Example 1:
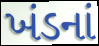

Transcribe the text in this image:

ખંડનાં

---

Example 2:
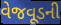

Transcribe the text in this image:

વેજવૂડની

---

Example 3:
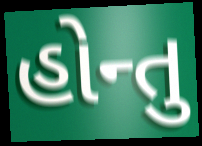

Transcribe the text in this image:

હોન્તુ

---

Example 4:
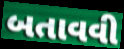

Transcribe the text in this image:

બતાવવી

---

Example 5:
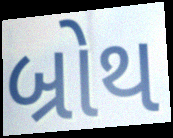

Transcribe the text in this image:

બ્રોથ